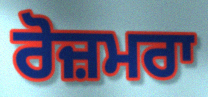
ਰੋਜ਼ਮਰਾ